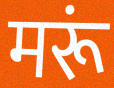
मरूं